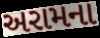
અરામના